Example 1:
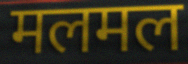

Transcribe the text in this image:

मलमल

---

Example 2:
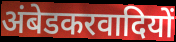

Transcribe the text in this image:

अंबेडकरवादियों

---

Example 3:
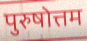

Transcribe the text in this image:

पुरुषोत्तम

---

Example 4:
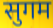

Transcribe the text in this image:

सुगम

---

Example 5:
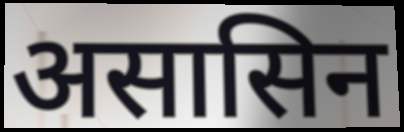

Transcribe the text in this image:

असासिन